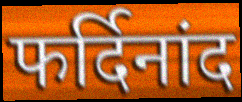
फर्दिनांद